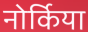
नोर्किया